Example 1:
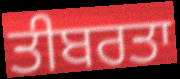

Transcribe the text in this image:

ਤੀਬਰਤਾ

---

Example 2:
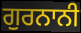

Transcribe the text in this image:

ਗੁਰਨਾਨੀ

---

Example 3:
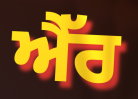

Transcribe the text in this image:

ਐੱਰ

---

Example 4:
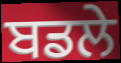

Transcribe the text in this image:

ਬਡਲੇ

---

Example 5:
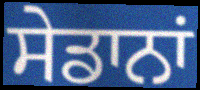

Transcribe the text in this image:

ਸੇਡਾਨਾਂ